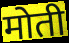
मोती